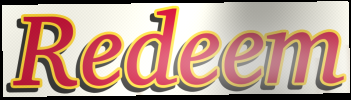
Redeem